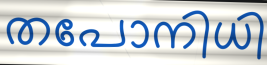
തപോനിധി